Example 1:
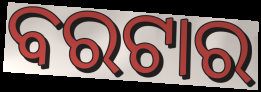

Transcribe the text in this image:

ବରଟାର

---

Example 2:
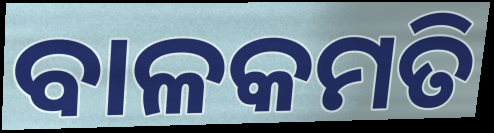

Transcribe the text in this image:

ବାଳକମତି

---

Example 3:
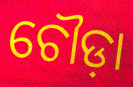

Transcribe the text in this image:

ଚୌଡ଼ା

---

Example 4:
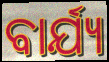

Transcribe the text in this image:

ବାର୍ଯ୍ୟ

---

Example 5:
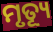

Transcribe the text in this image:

ମୃତ୍ୟୂ